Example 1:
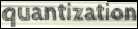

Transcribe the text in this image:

quantization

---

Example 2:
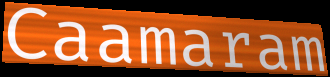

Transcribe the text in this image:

Caamaram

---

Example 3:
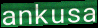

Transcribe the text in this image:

ankusa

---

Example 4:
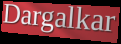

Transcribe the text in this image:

Dargalkar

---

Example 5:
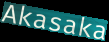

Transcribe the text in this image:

Akasaka